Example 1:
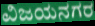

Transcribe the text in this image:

ವಿಜಯನಗರ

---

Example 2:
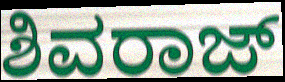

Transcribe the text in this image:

ಶಿವರಾಜ್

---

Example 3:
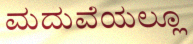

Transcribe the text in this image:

ಮದುವೆಯಲ್ಲೂ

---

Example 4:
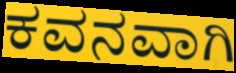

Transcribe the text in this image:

ಕವನವಾಗಿ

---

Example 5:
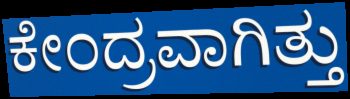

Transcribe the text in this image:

ಕೇಂದ್ರವಾಗಿತ್ತು